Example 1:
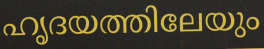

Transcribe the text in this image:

ഹൃദയത്തിലേയും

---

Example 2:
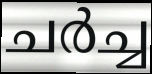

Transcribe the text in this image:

ചർച്ച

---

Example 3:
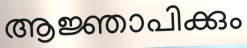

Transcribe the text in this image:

ആജ്ഞാപിക്കും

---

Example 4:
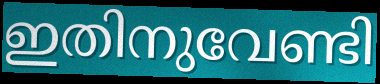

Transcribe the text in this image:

ഇതിനുവേണ്ടി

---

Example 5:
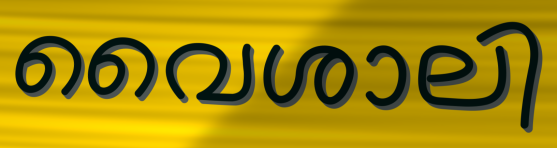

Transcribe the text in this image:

വൈശാലി